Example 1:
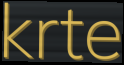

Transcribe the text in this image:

krte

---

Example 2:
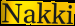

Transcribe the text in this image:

Nakki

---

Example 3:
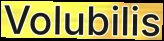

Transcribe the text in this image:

Volubilis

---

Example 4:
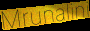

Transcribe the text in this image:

Mrunalini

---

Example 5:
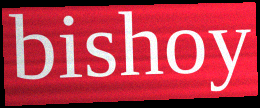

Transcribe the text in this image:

bishoy